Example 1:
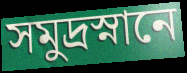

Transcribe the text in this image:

সমুদ্রস্নানে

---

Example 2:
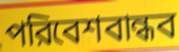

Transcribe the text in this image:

পরিবেশবান্ধব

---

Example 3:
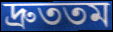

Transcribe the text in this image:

দ্রুততম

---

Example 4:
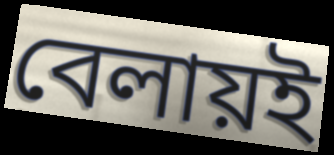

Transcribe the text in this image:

বেলায়ই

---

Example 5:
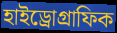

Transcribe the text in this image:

হাইড্রোগ্রাফিক